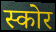
स्कोर